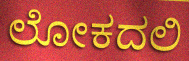
ಲೋಕದಲಿ